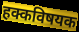
हक्कविषयक